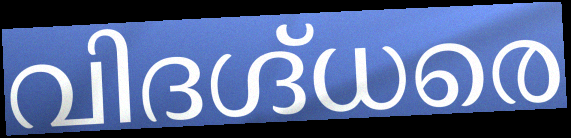
വിദഗ്ദ്ധരെ